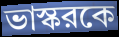
ভাস্করকে